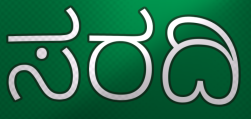
ಸರದಿ